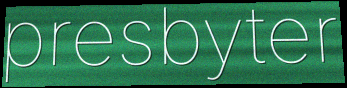
presbyter